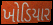
ખોડિયાર